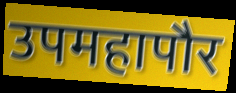
उपमहापौर